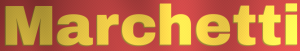
Marchetti